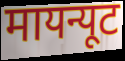
मायन्यूट